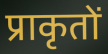
प्राकृतों